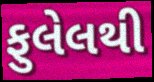
ફુલેલથી